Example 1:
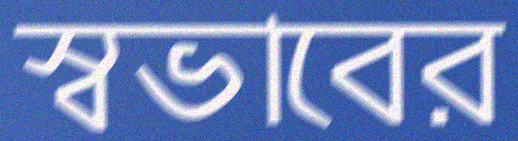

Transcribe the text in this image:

স্বভাবের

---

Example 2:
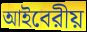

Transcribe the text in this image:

আইবেরীয়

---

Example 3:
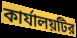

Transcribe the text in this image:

কার্যালয়টির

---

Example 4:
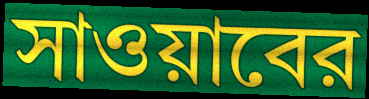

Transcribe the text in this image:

সাওয়াবের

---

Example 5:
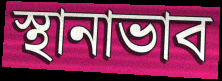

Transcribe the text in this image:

স্থানাভাব